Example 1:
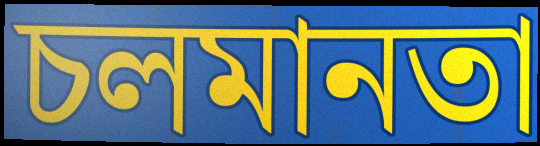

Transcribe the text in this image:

চলমানতা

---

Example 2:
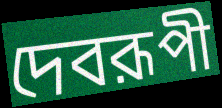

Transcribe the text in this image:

দেবরূপী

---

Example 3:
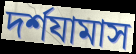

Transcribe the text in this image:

দর্শযামাস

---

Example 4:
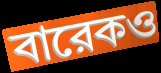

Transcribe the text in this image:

বারেকও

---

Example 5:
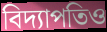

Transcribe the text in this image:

বিদ্যাপতিও